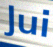
Jui